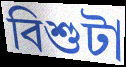
বিশুটা